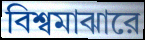
বিশ্বমাঝারে